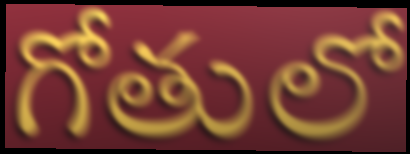
గోతులో